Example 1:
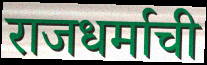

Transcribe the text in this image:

राजधर्माची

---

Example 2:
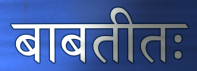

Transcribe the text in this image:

बाबतीतः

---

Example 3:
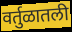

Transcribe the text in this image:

वर्तुळातली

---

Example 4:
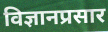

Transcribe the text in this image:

विज्ञानप्रसार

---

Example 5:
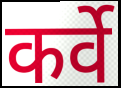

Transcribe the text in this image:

कर्वे